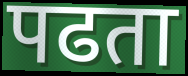
पढता